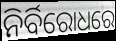
ନିର୍ବିରୋଧରେ